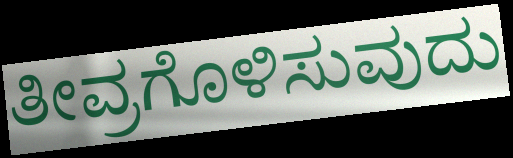
ತೀವ್ರಗೊಳಿಸುವುದು